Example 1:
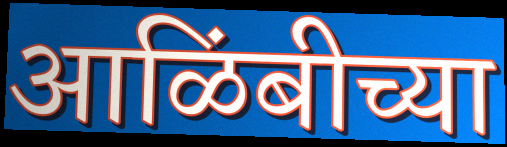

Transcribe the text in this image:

आळिंबीच्या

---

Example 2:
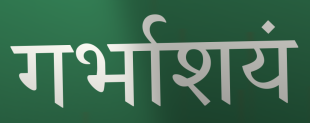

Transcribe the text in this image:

गर्भाशयं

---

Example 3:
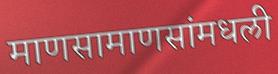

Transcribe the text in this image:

माणसामाणसांमधली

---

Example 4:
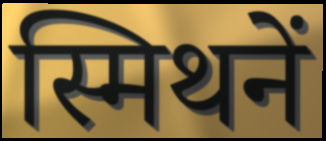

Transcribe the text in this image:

स्मिथनें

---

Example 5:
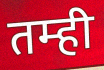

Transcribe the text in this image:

तम्ही